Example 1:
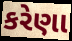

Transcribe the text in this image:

કરેણા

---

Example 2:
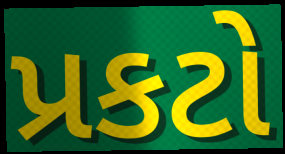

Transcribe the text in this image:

પ્રકટો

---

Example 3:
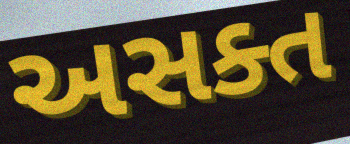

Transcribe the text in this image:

અસક્ત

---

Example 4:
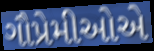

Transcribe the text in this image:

ગૌપ્રેમીઓએ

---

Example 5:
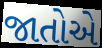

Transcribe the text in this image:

જાતોએ